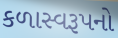
કળાસ્વરૂપનો